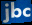
jbc